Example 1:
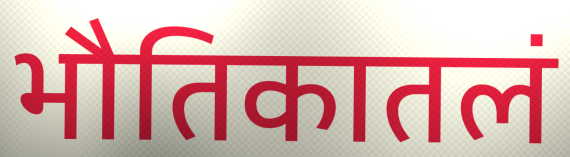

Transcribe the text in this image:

भौतिकातलं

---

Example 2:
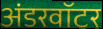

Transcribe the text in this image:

अंडरवॉटर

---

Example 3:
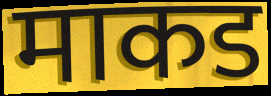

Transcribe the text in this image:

माकड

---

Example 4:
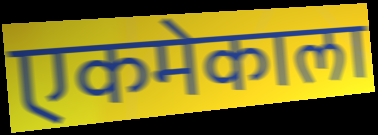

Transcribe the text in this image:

एकमेकाला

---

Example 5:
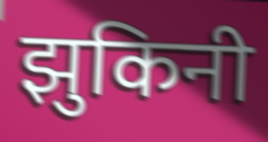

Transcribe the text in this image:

झुकिनी